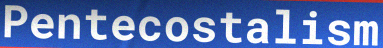
Pentecostalism